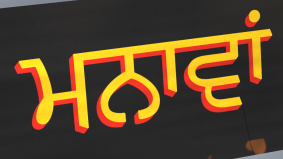
ਮਨਾਵਾਂ